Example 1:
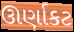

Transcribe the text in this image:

ઊર્ણાકટ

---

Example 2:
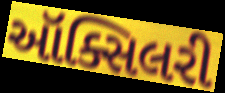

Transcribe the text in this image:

ઑક્સિલરી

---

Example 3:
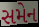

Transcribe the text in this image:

સમેન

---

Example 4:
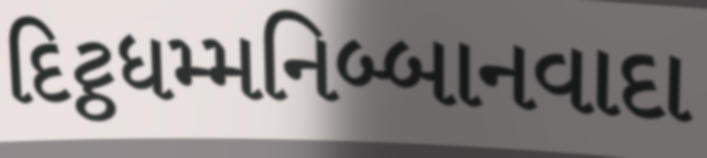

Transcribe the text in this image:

દિટ્ઠધમ્મનિબ્બાનવાદા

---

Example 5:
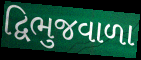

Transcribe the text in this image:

દ્વિભુજવાળા